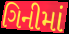
ગિનીમાં